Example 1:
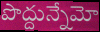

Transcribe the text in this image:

పొద్దున్నేమో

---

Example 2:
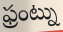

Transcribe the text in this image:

ఫ్రంట్ను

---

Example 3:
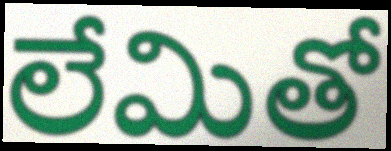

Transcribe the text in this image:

లేమితో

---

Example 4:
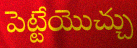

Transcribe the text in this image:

పెట్టేయొచ్చు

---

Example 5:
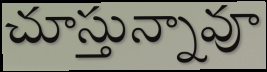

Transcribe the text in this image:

చూస్తున్నావూ